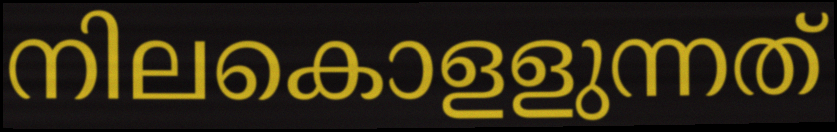
നിലകൊളളുന്നത്